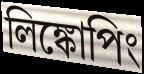
লিঙ্কোপিং